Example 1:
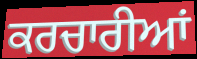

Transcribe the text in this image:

ਕਰਚਾਰੀਆਂ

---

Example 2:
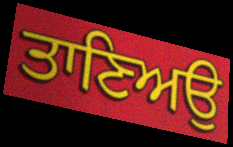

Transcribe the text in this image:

ਤਾਣਿਅਉ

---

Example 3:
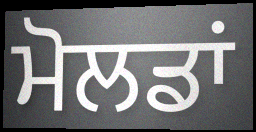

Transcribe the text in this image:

ਮੋਲਡਾਂ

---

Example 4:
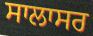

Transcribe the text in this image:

ਸਾਲਾਸਰ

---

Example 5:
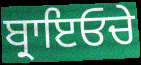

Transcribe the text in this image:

ਬ੍ਰਾਇਓਚੇ